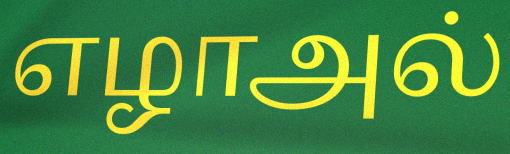
எழாஅல்